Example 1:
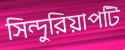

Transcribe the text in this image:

সিন্দুরিয়াপটি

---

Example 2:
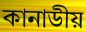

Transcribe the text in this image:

কানাডীয়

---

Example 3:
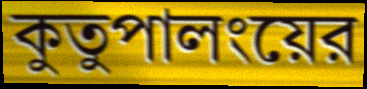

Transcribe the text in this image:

কুতুপালংয়ের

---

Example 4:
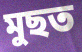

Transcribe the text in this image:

মুছত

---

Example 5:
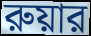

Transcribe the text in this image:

রুয়ার